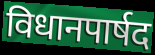
विधानपार्षद